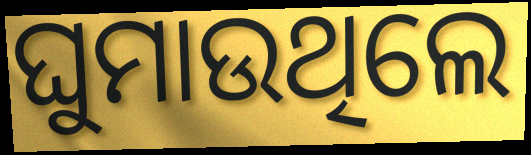
ଘୁମାଉଥିଲେ